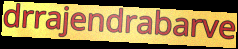
drrajendrabarve